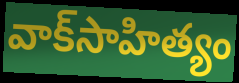
వాక్‌సాహిత్యం